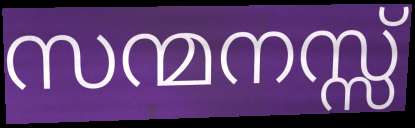
സന്മനസ്സ്